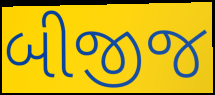
બીજીજ